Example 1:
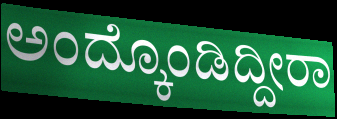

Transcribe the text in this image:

ಅಂದ್ಕೊಂಡಿದ್ದೀರಾ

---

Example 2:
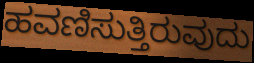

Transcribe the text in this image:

ಹವಣಿಸುತ್ತಿರುವುದು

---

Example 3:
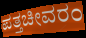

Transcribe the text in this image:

ಪತ್ತಚೀವರಂ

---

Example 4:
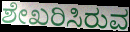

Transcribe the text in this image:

ಶೇಖರಿಸಿರುವ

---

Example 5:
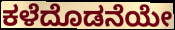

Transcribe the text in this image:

ಕಳೆದೊಡನೆಯೇ